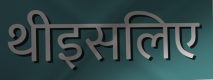
थीइसलिए